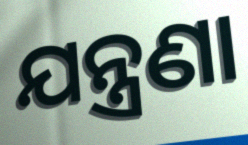
ଯନ୍ତ୍ରଣା